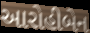
આરોહીબેન